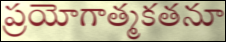
ప్రయోగాత్మకతనూ